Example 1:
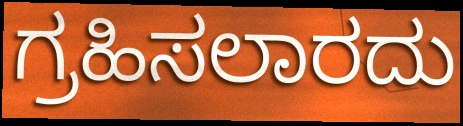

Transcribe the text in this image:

ಗ್ರಹಿಸಲಾರದು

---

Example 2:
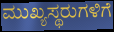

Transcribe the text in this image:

ಮುಖ್ಯಸ್ಥರುಗಳಿಗೆ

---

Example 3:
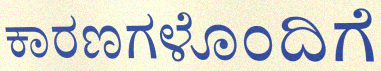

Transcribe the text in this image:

ಕಾರಣಗಳೊಂದಿಗೆ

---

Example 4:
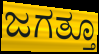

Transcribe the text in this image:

ಜಗತ್ತೂ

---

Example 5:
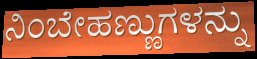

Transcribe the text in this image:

ನಿಂಬೇಹಣ್ಣುಗಳನ್ನು